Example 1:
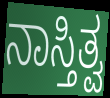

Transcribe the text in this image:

ನಾಸ್ತಿತ್ವ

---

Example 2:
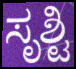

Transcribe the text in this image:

ಸೃಶ್ಟಿ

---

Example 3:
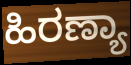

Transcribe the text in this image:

ಹಿರಣ್ಯಾ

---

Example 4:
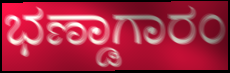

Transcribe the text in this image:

ಭಣ್ಡಾಗಾರಂ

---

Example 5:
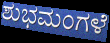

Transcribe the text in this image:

ಶುಭಮಂಗಳೆ